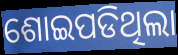
ଶୋଇପଡିଥିଲା